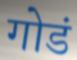
गोडं